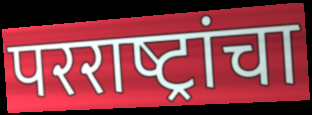
परराष्ट्रांचा